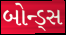
બોન્ડ્સ